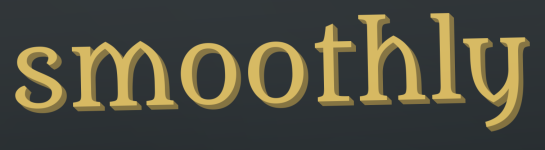
smoothly